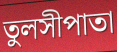
তুলসীপাতা